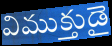
విముక్తుడై